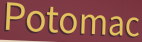
Potomac